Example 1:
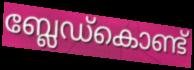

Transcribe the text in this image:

ബ്ലേഡ്കൊണ്ട്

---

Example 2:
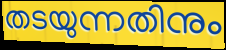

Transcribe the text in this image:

തടയുന്നതിനും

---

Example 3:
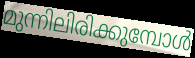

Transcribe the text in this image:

മുന്നിലിരിക്കുമ്പോൾ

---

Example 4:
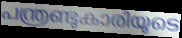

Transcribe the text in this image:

പന്ത്രണ്ടുകാരിയുടെ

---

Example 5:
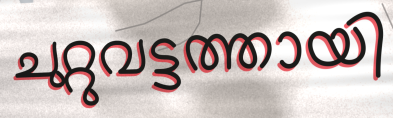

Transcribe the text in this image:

ചുറ്റുവട്ടത്തായി